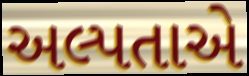
અલ્પતાએ